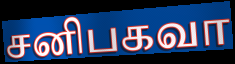
சனிபகவா